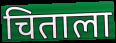
चिताला